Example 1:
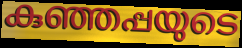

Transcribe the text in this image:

കുഞ്ഞപ്പയുടെ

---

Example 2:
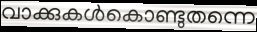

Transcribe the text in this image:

വാക്കുകൾകൊണ്ടുതന്നെ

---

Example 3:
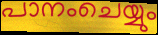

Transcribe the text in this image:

പാനംചെയ്യും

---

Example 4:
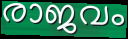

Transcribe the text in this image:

രാജവം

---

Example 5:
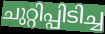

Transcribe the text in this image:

ചുറ്റിപ്പിടിച്ച